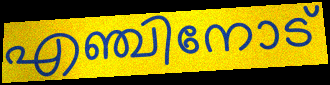
എഞ്ചിനോട്